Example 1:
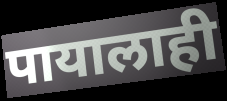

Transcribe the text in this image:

पायालाही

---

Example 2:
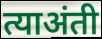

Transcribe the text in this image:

त्याअंती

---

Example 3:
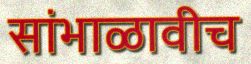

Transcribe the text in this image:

सांभाळावीच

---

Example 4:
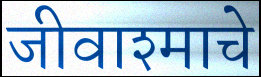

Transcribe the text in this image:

जीवाश्माचे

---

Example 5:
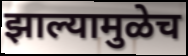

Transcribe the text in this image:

झाल्यामुळेच